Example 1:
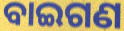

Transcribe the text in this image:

ବାଇଗଣ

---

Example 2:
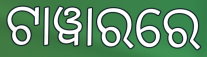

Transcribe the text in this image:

ଟାୱାରରେ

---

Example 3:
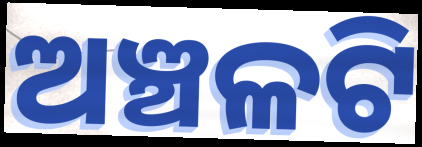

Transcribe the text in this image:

ଅଞ୍ଚଳଟି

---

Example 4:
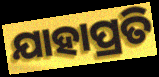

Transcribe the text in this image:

ଯାହାପ୍ରତି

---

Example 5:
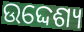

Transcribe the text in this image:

ଉଦ୍ଦେଶ୍ୟ